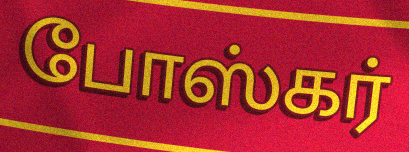
போஸ்கர்